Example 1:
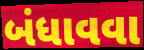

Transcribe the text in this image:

બંધાવવા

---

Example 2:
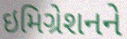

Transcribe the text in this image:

ઇમિગ્રેશનને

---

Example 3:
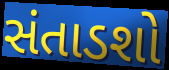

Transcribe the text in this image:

સંતાડશો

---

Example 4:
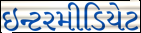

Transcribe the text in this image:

ઇન્ટરમીડિયેટ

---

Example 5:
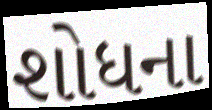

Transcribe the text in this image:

શોધના